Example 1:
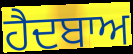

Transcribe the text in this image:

ਹੈਦਬਾਅ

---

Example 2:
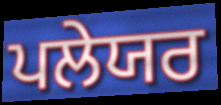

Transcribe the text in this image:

ਪਲੇਯਰ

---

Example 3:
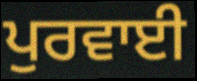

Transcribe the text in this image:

ਪੁਰਵਾਈ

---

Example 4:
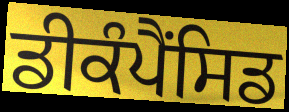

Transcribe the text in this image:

ਡੀਕੰਪੈਂਸਿਡ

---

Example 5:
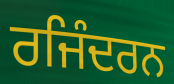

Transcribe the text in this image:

ਰਜਿੰਦਰਨ